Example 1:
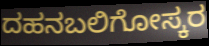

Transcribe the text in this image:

ದಹನಬಲಿಗೋಸ್ಕರ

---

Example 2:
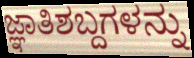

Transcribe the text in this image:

ಜ್ಞಾತಿಶಬ್ದಗಳನ್ನು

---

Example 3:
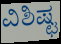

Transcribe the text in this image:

ವಿಶಿಷ್ಟ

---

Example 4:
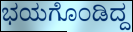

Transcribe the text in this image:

ಭಯಗೊಂಡಿದ್ದ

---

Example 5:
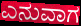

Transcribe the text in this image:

ಎನುವಾಗ